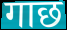
गाछ